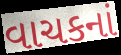
વાચકનાં